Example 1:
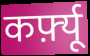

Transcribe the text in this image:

कर्फ़्यू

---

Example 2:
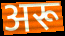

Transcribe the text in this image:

अरू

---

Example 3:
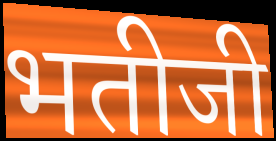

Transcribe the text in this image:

भतीजी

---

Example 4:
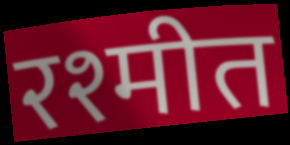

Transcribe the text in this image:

रश्मीत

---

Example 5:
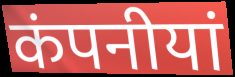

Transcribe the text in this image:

कंपनीयां